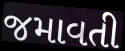
જમાવતી